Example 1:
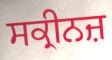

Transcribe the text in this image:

ਸਕ੍ਰੀਨਜ਼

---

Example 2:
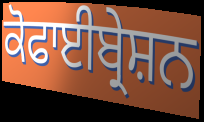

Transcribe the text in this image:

ਕੋਫਾਈਬ੍ਰੇਸ਼ਨ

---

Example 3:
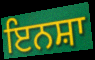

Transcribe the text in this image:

ਇਨਸ਼ਾ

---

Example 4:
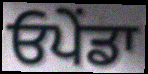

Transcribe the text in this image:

ਓਪੇਂਡਾ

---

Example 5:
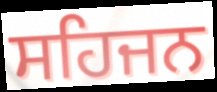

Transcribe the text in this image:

ਸਹਿਜਨ